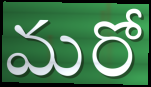
మరో